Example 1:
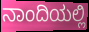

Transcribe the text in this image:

ನಾಂದಿಯಲ್ಲಿ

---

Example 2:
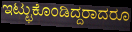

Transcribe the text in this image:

ಇಟ್ಟುಕೊಂಡಿದ್ದರಾದರೂ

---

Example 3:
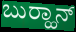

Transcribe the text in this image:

ಬುರ‍್ಹಾನ್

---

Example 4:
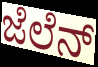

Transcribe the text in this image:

ಜೆಲೆನ್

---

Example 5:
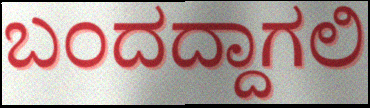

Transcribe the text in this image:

ಬಂದದ್ದಾಗಲಿ